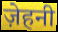
ज़ेहनी